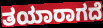
ತಯಾರಾಗದೆ